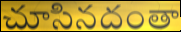
చూసినదంతా